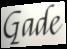
Gade